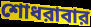
শোধরাবার